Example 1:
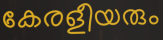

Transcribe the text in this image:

കേരളീയരും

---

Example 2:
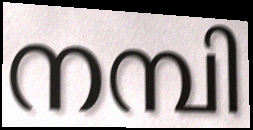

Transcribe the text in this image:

നമ്പി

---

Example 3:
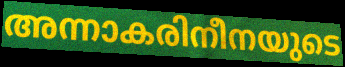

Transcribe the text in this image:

അന്നാകരിനീനയുടെ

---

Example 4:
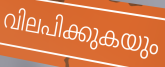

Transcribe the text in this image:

വിലപിക്കുകയും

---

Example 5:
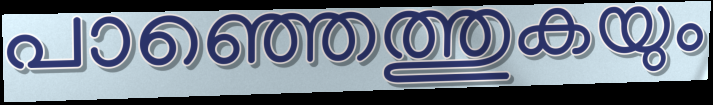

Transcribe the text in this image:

പാഞ്ഞെത്തുകയും